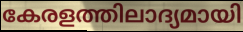
കേരളത്തിലാദ്യമായി